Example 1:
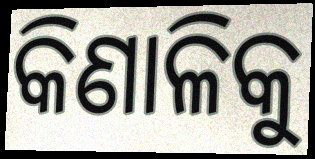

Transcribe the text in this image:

କିଣାଳିକୁ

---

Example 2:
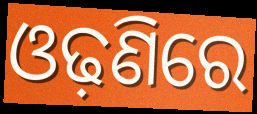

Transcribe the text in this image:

ଓଢ଼ଣିରେ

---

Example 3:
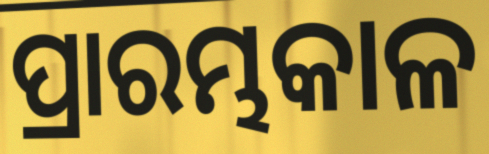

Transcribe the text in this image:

ପ୍ରାରମ୍ଭକାଳ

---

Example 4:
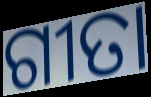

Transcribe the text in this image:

ଗୀତା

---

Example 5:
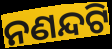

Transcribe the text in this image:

ନଣନ୍ଦଟି